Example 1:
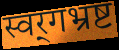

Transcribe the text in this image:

स्वर्गभ्रष्ट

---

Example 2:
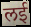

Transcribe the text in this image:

लई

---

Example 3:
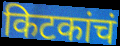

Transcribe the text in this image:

किटकांचं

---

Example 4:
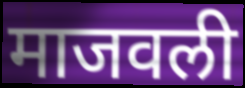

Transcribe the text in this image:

माजवली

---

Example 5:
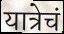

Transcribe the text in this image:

यात्रेचं